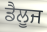
ਡੈਲੂਜ